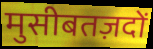
मुसीबतज़दों